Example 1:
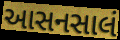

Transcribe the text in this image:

આસનસાલં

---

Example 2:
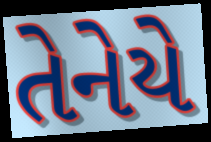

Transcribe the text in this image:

તેનેયે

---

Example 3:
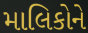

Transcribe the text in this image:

માલિકોને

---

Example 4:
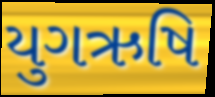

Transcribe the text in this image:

યુગઋષિ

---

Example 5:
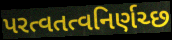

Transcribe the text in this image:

પરત્વતત્વનિર્ણચ્છ